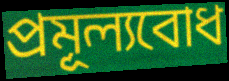
প্ৰমূল্যবোধ